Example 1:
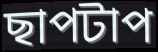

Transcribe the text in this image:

ছাপটাপ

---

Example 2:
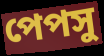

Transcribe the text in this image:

পেপসু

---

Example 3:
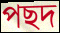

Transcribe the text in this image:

পছদ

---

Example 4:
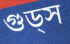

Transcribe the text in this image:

গুড্স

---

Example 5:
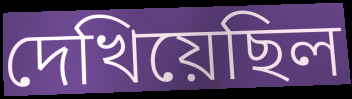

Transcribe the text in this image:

দেখিয়েছিল